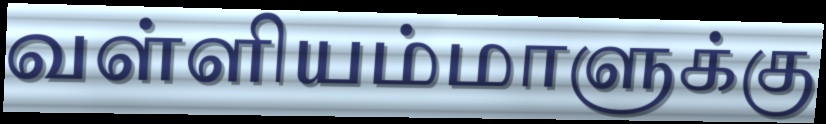
வள்ளியம்மாளுக்கு